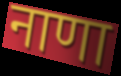
नाणा